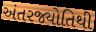
અંતરજ્યોતિથી